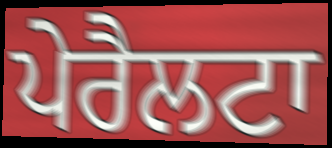
ਪੇਰੈਲਟਾ